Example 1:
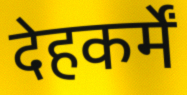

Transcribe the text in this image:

देहकर्में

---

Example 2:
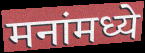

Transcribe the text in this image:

मनांमध्ये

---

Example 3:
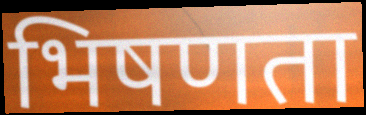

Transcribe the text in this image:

भिषणता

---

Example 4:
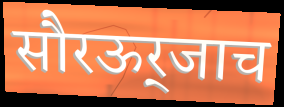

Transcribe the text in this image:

सौरऊर्जाच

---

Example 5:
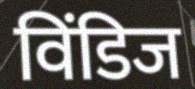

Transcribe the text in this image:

विंडिज